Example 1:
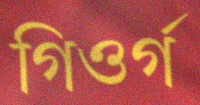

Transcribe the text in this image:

গিওৰ্গ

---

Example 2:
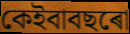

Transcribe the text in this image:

কেইবাবছৰো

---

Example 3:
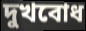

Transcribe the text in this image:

দুখবোধ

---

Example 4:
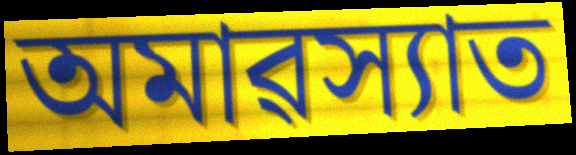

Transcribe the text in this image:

অমাৱস্যাত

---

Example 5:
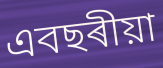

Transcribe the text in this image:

এবছৰীয়া